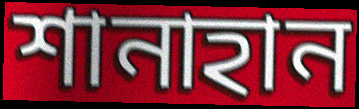
শানাহান